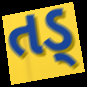
તડ્